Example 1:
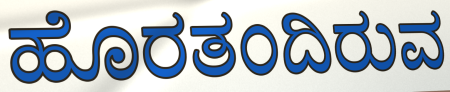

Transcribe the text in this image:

ಹೊರತಂದಿರುವ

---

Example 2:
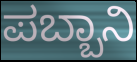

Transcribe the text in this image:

ಪಬ್ಬಾನಿ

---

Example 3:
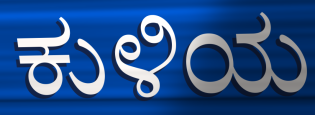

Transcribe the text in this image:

ಕುಳಿಯ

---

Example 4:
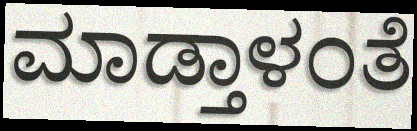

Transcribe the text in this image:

ಮಾಡ್ತಾಳಂತೆ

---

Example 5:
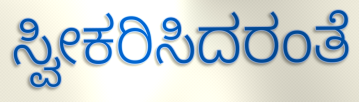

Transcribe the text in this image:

ಸ್ವೀಕರಿಸಿದರಂತೆ